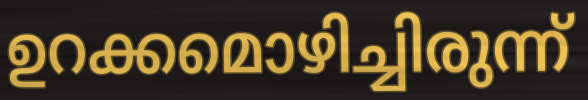
ഉറക്കമൊഴിച്ചിരുന്ന്